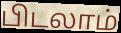
பிடலாம்